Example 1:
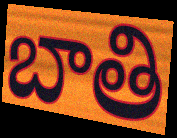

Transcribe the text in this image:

బాతి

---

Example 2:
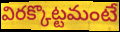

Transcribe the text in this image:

విరక్కొట్టమంటే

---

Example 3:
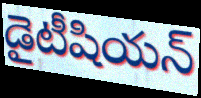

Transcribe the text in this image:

డైటీషియన్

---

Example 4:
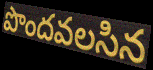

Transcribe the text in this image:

పొందవలసిన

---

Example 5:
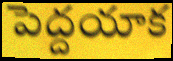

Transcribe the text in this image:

పెద్దయాక